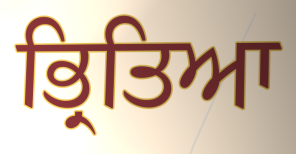
ਭ੍ਰਿਤਿਆ